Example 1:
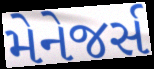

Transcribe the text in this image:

મેનેજર્સ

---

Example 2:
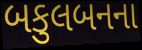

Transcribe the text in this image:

બકુલબનના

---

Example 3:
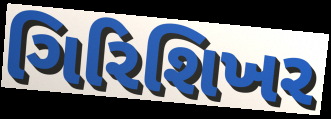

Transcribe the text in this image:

ગિરિશિખર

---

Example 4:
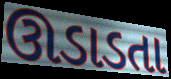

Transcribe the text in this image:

ઊડાડતા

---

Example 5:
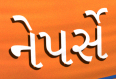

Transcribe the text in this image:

નેપર્સે